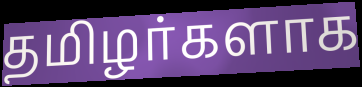
தமிழர்களாக